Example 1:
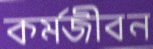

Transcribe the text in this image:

কর্মজীবন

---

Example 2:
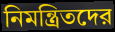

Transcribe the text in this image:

নিমন্ত্রিতদের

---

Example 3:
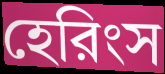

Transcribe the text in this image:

হেরিংস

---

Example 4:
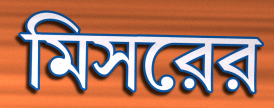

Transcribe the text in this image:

মিসরের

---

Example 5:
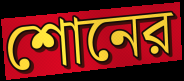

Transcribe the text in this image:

শোনের